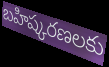
బహిష్కరణలకు